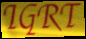
IGRT